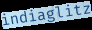
indiaglitz